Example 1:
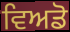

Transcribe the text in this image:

ਵਿਅਡੋ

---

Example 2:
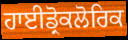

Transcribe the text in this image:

ਹਾਈਡ੍ਰੋਕਲੋਰਿਕ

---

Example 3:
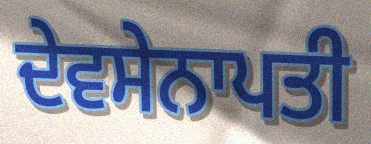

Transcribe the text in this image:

ਦੇਵਸੇਨਾਪਤੀ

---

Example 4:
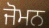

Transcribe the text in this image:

ਜੋਮਨ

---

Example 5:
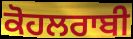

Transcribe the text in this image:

ਕੋਹਲਰਾਬੀ